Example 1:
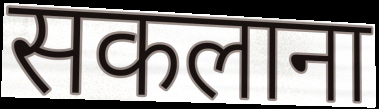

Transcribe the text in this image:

सकलाना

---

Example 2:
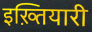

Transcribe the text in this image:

इख़्तियारी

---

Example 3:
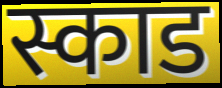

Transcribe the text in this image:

स्काड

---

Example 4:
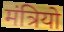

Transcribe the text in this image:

मंत्रियो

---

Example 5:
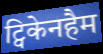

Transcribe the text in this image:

ट्विकेनहैम